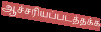
ஆச்சரியப்படத்தக்க